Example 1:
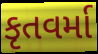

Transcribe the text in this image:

કૃતવર્મા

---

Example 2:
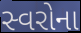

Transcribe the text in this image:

સ્વરોના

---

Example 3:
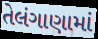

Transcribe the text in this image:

તેલંગાણામાં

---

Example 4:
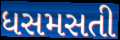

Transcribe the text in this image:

ધસમસતી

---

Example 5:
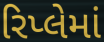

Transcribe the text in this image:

રિપ્લેમાં